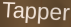
Tapper